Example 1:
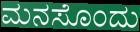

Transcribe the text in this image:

ಮನಸೊಂದು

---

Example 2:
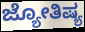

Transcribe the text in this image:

ಜ್ಯೋತಿಷ್ಯ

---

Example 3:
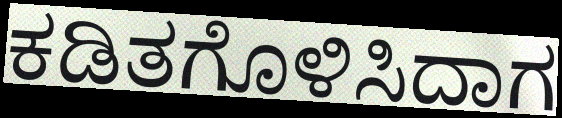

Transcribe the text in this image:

ಕಡಿತಗೊಳಿಸಿದಾಗ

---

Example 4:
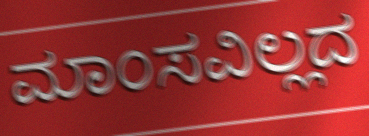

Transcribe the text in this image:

ಮಾಂಸವಿಲ್ಲದ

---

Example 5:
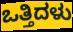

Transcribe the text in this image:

ಒತ್ತಿದಳು